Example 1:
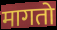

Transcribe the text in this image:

मागतो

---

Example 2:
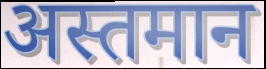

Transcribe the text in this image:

अस्तमान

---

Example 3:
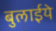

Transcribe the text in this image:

बुलाईये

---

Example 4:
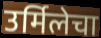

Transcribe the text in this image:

उर्मिलेचा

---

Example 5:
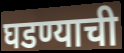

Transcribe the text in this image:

घडण्याची